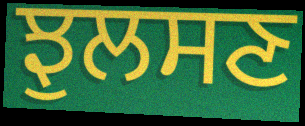
ਝੁਲਸਣ